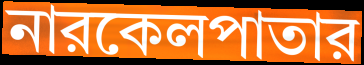
নারকেলপাতার